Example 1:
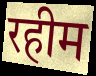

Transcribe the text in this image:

रहीम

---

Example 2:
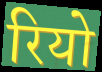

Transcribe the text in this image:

रियो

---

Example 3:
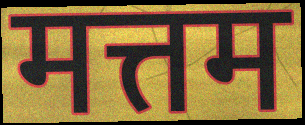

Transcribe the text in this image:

मत्तम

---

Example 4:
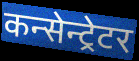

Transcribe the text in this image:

कन्सेन्ट्रेटर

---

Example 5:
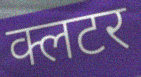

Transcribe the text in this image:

क्लटर